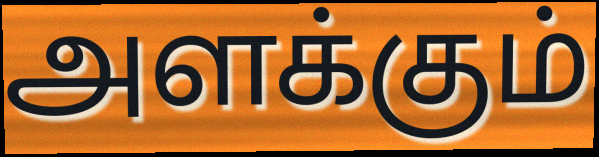
அளக்கும்